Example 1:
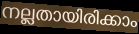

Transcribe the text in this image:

നല്ലതായിരിക്കാം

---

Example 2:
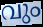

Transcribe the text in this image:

വും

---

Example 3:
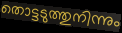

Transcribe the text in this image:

തൊട്ടടുത്തുനിന്നും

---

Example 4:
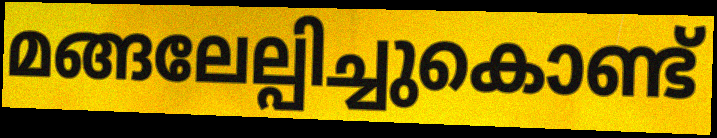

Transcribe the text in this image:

മങ്ങലേല്പിച്ചുകൊണ്ട്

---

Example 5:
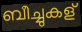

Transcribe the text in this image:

ബീച്ചുകള്